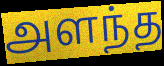
அளந்த